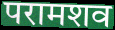
परामशव